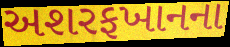
અશરફખાનના